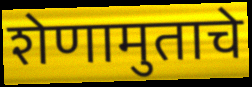
शेणामुताचे